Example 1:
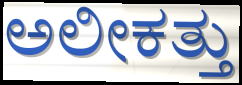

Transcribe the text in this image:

ಅಲೀಕತ್ತು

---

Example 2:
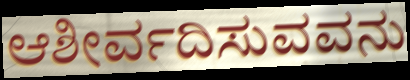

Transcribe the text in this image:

ಆಶೀರ್ವದಿಸುವವನು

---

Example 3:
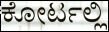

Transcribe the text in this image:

ಕೋರ್ಟಲ್ಲಿ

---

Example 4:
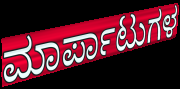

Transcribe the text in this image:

ಮಾರ್ಪಾಟುಗಳ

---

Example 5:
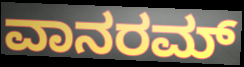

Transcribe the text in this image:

ವಾನರಮ್